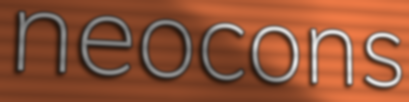
neocons